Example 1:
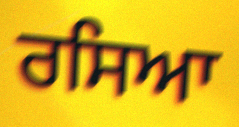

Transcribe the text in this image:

ਰਸਿਆ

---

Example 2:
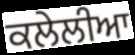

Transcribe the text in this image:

ਕਲੇਲੀਆ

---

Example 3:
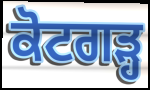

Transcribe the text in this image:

ਕੋਟਗੜ੍ਹ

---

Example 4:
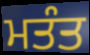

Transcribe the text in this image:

ਮਤੰਤ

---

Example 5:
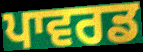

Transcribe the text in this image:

ਪਾਵਰਡ